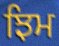
ਝਿਮ